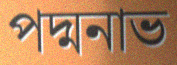
পদ্মনাভ